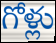
గోళ్లు